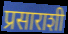
प्रसाराशी